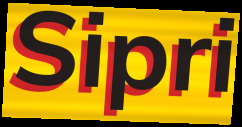
Sipri